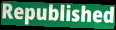
Republished